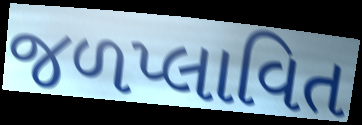
જળપ્લાવિત